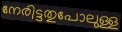
നേരിട്ടതുപോലുള്ള